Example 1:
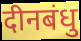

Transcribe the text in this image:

दीनबंधु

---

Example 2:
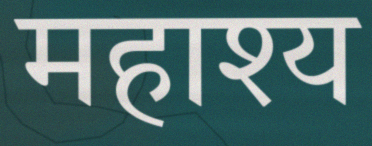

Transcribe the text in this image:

महाश्य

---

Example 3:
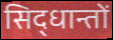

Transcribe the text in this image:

सिद्धान्तों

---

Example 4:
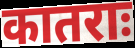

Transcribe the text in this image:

कातराः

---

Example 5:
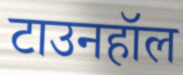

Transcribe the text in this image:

टाउनहॉल